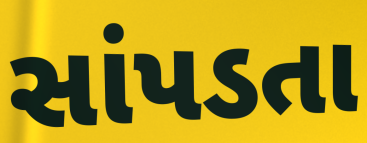
સાંપડતા